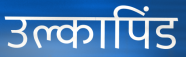
उल्‍कापिंड